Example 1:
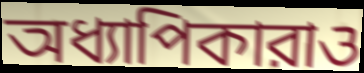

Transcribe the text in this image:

অধ্যাপিকারাও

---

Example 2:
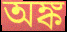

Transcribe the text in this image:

অঙ্ক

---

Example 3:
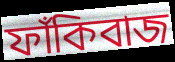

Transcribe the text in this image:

ফাঁকিবাজ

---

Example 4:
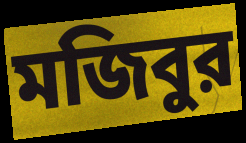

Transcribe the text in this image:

মজিবুর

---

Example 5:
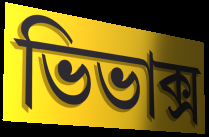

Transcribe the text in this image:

ভিভাক্স